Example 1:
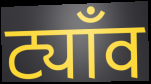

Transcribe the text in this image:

ट्याँव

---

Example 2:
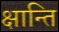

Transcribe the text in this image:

क्षान्ति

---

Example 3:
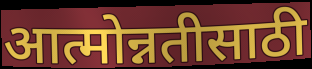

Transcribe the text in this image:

आत्मोन्नतीसाठी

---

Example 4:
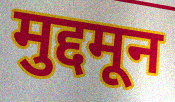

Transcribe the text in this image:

मुद्दमून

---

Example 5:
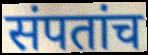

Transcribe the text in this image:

संपतांच